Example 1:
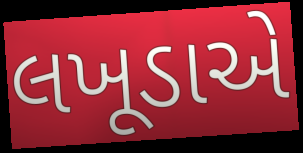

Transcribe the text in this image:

લખૂડાએ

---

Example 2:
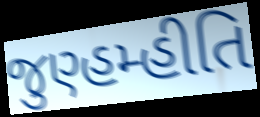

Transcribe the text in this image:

જુણ્હમ્હીતિ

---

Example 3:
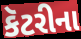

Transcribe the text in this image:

કૅટરીના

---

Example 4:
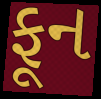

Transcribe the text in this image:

ફૂન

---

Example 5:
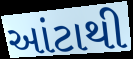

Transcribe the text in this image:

આંટાથી